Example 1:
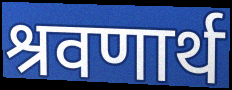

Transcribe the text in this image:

श्रवणार्थ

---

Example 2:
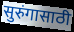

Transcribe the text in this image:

सुरुंगासाठी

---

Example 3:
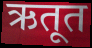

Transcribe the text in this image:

ऋतूत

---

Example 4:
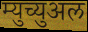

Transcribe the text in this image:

म्युच्युअल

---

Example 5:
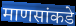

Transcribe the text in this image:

माणसांकडे